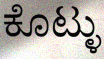
ಕೊಟ್ಳು